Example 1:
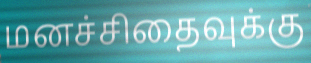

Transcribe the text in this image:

மனச்சிதைவுக்கு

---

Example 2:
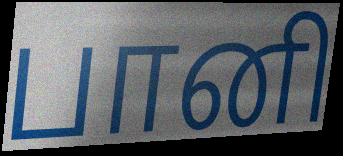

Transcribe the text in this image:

பானி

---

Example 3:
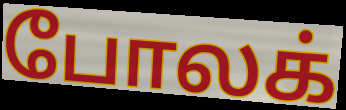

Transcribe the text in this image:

போலக்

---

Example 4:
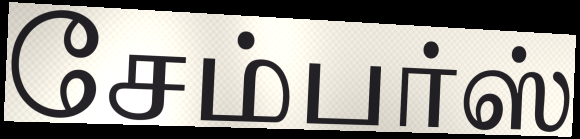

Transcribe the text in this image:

சேம்பர்ஸ்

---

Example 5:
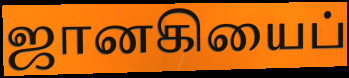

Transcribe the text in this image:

ஜானகியைப்